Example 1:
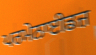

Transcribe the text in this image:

ਪਰਮੇਨਾਈਡਜ਼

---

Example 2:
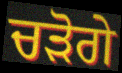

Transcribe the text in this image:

ਚੜੋਗੇ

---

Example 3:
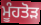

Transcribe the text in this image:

ਮੂੰਹਤੋੜ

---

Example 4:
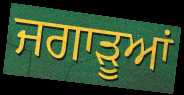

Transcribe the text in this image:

ਜਗਾੜੂਆਂ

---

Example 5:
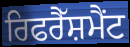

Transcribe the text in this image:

ਰਿਫਰੈੱਸ਼ਮੈਂਟ